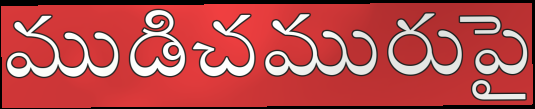
ముడిచమురుపై